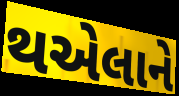
થએલાને